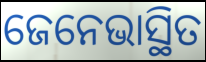
ଜେନେଭାସ୍ଥିତ